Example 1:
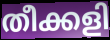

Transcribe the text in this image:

തീക്കളി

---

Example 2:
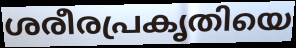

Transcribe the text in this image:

ശരീരപ്രകൃതിയെ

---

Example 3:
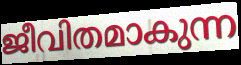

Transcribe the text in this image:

ജീവിതമാകുന്ന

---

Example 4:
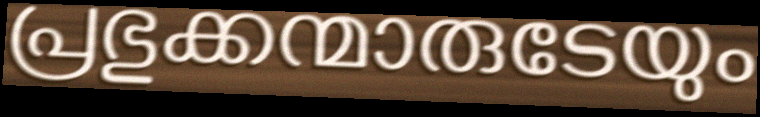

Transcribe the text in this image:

പ്രഭുക്കന്മാരുടേയും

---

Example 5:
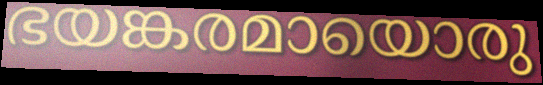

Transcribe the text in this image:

ഭയങ്കരമായൊരു